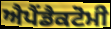
ਐਪੈਂਡੈਕਟੋਮੀ